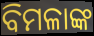
ବିମଳାଙ୍କ